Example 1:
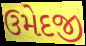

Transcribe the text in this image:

ઉમેદજી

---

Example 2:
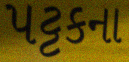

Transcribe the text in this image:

પટ્ટકના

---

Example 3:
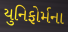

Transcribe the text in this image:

યુનિફોર્મના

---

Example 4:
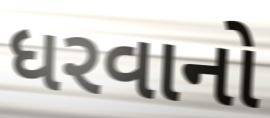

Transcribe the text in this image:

ધરવાનો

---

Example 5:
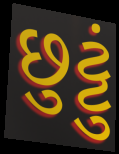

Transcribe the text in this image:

છુટ્ટું